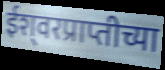
ईश्वरप्राप्तीच्या